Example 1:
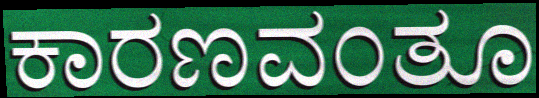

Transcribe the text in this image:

ಕಾರಣವಂತೂ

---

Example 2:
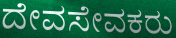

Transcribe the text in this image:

ದೇವಸೇವಕರು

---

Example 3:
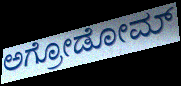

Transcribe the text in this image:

ಅಗ್ರೋಡೋಮ್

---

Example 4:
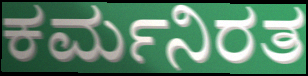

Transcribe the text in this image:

ಕರ್ಮನಿರತ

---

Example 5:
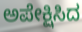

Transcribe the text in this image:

ಅಪೇಕ್ಷಿಸಿದ